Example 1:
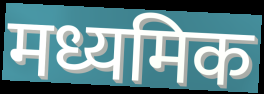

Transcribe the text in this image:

मध्यमिक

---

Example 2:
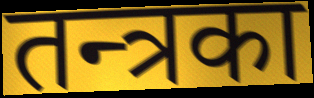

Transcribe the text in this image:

तन्त्रका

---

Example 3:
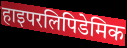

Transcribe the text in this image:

हाइपरलिपिडेमिक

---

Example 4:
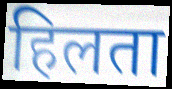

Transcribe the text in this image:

हिलता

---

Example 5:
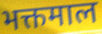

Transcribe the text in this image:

भक्तमाल